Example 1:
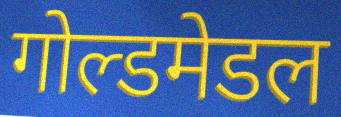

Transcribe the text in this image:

गोल्डमेडल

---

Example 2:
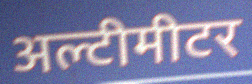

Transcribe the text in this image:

अल्टीमीटर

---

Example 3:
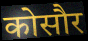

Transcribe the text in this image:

कोसौर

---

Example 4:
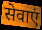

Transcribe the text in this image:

सेवाएं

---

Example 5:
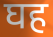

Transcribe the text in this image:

घह